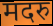
मदरु